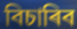
বিচাৰিব